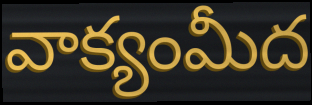
వాక్యంమీద